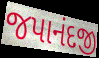
જપાનંદજી